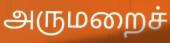
அருமறைச்